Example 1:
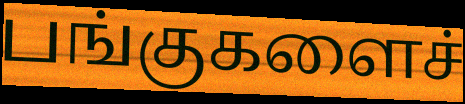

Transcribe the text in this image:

பங்குகளைச்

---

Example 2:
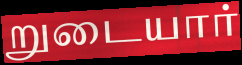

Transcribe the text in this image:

றுடையார்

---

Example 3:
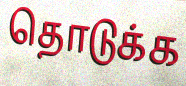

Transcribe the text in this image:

தொடுக்க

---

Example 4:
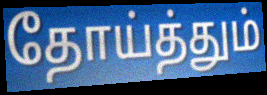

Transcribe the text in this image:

தோய்த்தும்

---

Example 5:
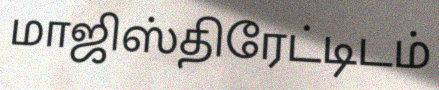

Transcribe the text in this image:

மாஜிஸ்திரேட்டிடம்